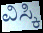
ವಿಸ್ಕಿ